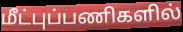
மீட்புப்பணிகளில்